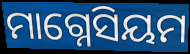
ମାଗ୍ନେସିୟମ